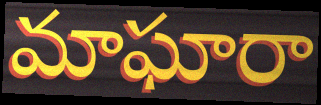
మాఘారా